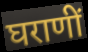
घराणीं